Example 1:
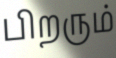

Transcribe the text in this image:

பிறரும்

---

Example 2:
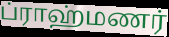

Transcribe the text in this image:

ப்ராஹ்மணர்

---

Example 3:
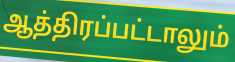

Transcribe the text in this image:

ஆத்திரப்பட்டாலும்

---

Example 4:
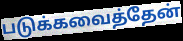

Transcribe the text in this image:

படுக்கவைத்தேன்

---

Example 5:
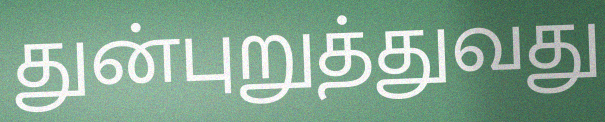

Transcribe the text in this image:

துன்புறுத்துவது